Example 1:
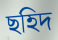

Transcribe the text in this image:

ছহিদ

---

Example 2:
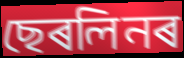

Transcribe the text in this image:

ছেৰলিনৰ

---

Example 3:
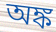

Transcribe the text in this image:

অঙ্ক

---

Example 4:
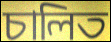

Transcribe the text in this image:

চালিত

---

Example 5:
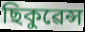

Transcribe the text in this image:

ছিকুৱেন্স